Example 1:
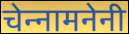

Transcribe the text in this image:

चेन्नामनेनी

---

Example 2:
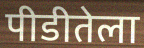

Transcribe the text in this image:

पीडीतेला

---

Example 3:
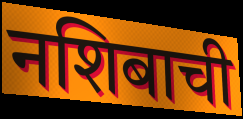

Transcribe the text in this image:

नशिबाची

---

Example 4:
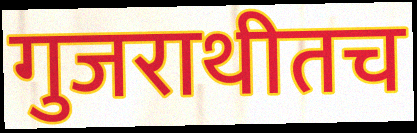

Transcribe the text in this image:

गुजराथीतच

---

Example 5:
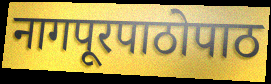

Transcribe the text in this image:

नागपूरपाठोपाठ